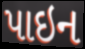
પાઇન